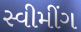
સ્વીમીંગ